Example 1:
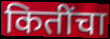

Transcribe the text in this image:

कितींचा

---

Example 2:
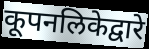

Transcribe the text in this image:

कूपनलिकेद्वारे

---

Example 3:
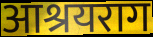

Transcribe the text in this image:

आश्रयराग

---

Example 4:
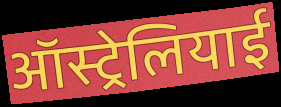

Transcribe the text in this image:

ऑस्ट्रेलियाई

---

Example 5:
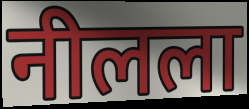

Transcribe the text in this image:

नीलला